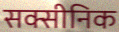
सक्सीनिक